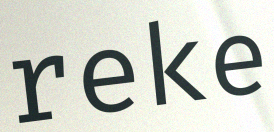
reke